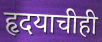
हृदयाचीही